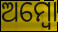
ଅମ୍ୱୋ